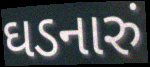
ઘડનારું